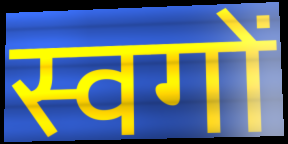
स्वगों